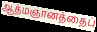
ஆத்மஞானத்தைப்